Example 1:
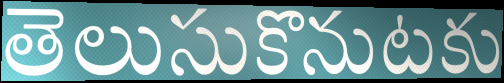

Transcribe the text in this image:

తెలుసుకొనుటకు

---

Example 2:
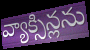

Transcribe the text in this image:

వ్యాక్సిన్లను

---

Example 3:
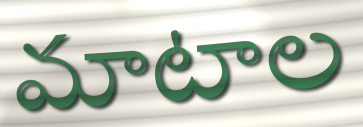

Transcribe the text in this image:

మాటాల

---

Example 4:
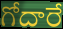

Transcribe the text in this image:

గోదారే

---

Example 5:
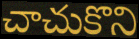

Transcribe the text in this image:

చాచుకొని